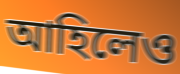
আহিলেও